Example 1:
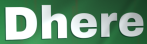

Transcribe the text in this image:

Dhere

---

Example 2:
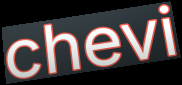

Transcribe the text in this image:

chevi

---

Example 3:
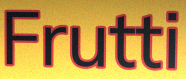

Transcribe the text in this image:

Frutti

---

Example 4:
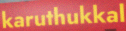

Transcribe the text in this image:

karuthukkal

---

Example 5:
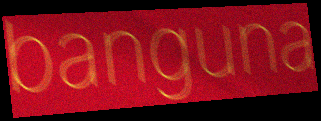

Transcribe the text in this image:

banguna